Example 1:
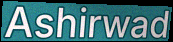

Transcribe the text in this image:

Ashirwad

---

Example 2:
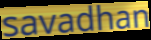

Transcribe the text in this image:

savadhan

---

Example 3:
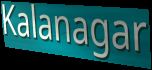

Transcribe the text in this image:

Kalanagar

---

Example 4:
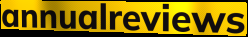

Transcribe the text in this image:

annualreviews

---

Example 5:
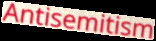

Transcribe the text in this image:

Antisemitism